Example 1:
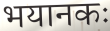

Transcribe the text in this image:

भयानकः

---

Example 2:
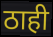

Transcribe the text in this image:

ठाही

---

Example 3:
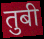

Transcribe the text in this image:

तुबी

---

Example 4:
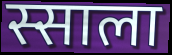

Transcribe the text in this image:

स्साला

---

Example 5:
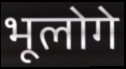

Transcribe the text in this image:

भूलोगे